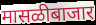
मासळीबाजार